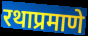
रथाप्रमाणे